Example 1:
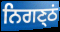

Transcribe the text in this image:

ਨਿਗਣ੍ਠਂ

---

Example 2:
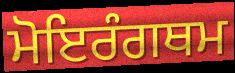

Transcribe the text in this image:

ਮੋਇਰੰਗਥਮ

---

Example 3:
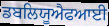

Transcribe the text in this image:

ਡਬਲਿਯੂਐਫਆਈ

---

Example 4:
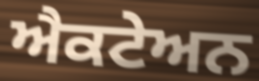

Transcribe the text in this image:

ਐਕਟੇਅਨ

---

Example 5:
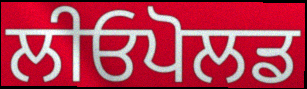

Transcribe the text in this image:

ਲੀਓਪੋਲਡ